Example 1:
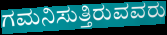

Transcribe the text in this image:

ಗಮನಿಸುತ್ತಿರುವವರು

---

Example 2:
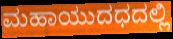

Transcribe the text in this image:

ಮಹಾಯುದಧದಲ್ಲಿ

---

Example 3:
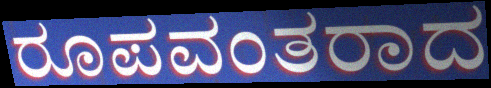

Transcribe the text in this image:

ರೂಪವಂತರಾದ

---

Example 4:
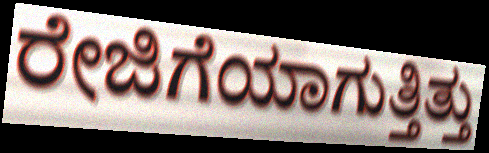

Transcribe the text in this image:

ರೇಜಿಗೆಯಾಗುತ್ತಿತ್ತು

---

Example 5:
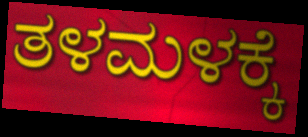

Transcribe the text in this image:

ತಳಮಳಕ್ಕೆ